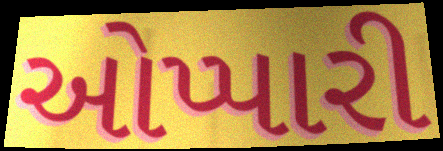
ઓપ્પારી